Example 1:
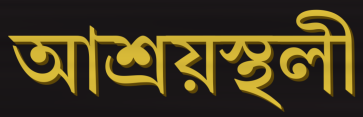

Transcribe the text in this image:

আশ্ৰয়স্থলী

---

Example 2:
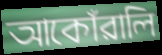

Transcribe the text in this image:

আকোঁৱালি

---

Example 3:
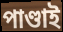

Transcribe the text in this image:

পাণ্ডাই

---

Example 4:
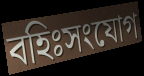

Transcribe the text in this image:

বহিঃসংযোগ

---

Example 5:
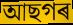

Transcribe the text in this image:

আছগৰ